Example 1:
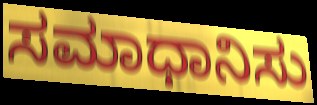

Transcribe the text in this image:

ಸಮಾಧಾನಿಸು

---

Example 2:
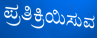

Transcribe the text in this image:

ಪ್ರತಿಕ್ರಿಯಿಸುವ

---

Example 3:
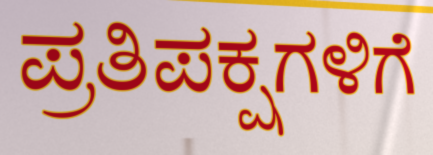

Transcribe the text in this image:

ಪ್ರತಿಪಕ್ಷಗಳಿಗೆ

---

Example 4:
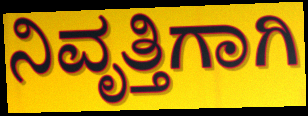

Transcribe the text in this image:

ನಿವೃತ್ತಿಗಾಗಿ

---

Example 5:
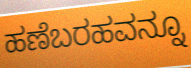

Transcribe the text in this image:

ಹಣೆಬರಹವನ್ನೂ